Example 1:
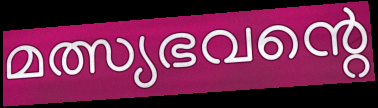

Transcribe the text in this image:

മത്സ്യഭവന്റെ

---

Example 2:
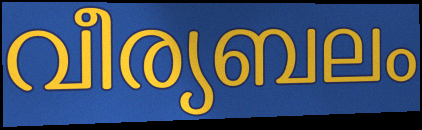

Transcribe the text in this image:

വീര്യബലം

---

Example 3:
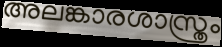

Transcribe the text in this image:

അലങ്കാരശാസ്ത്രം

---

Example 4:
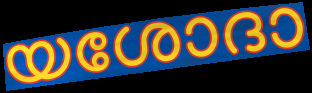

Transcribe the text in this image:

യശോദാ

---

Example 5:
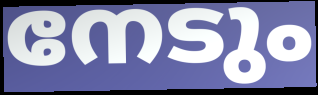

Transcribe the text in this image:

നേടും